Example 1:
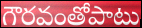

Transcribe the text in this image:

గౌరవంతోపాటు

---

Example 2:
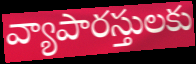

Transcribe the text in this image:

వ్యాపారస్తులకు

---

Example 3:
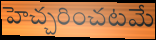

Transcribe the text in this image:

హెచ్చరించటమే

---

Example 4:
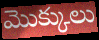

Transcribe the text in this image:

మొక్కులు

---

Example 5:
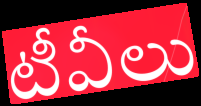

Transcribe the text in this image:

టీవీలు